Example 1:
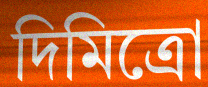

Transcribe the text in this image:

দিমিত্রো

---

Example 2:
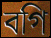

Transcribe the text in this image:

বগি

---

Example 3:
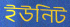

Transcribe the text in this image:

ইউনিট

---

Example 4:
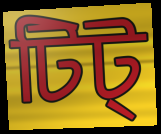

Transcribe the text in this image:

টিট্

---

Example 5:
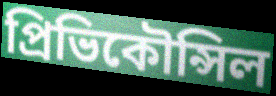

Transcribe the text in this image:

প্রিভিকৌন্সিল